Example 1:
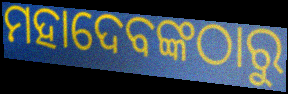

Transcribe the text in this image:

ମହାଦେବଙ୍କଠାରୁ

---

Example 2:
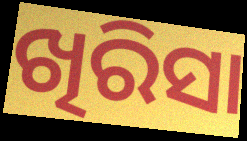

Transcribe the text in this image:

ଖିରିସା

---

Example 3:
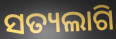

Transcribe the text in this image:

ସତ୍ୟଲାଗି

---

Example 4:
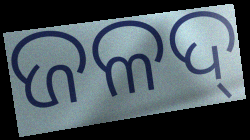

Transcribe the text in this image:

ଜଳଦ୍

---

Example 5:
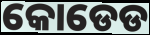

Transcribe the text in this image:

କୋଡେଡ